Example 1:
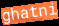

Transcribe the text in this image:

ghatni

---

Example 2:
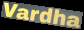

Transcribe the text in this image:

Vardha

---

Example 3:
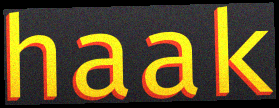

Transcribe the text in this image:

haak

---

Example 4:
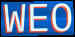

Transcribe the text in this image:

WEO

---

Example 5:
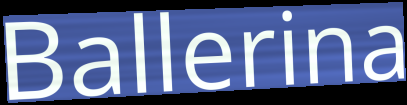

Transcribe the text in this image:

Ballerina